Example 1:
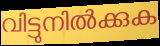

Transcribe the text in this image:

വിട്ടുനിൽക്കുക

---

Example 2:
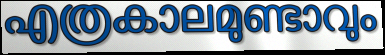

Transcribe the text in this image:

എത്രകാലമുണ്ടാവും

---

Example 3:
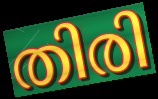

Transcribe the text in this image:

തിരി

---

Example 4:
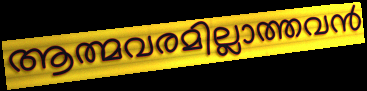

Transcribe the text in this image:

ആത്മവരമില്ലാത്തവൻ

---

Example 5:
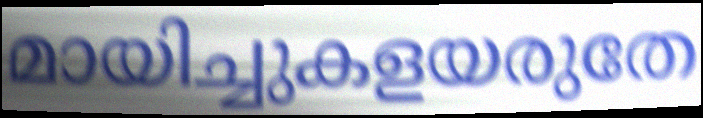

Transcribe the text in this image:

മായിച്ചുകളയരുതേ